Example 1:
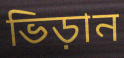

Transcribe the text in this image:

ভিড়ান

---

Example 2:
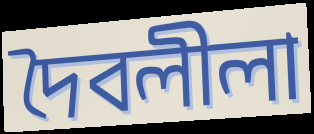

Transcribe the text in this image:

দৈবলীলা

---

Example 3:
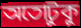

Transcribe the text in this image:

অতোটুকু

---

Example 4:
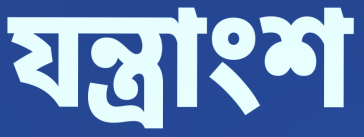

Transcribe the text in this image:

যন্ত্রাংশ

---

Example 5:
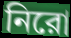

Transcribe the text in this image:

নিরো